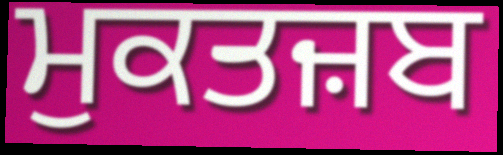
ਮੁਕਤਜ਼ਬ